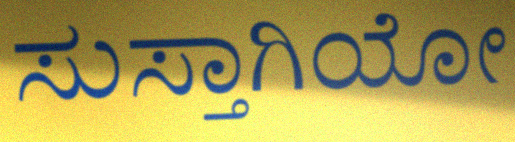
ಸುಸ್ತಾಗಿಯೋ